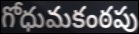
గోధుమకంఠపు